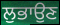
ਲੁਭਾਉਣ